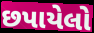
છપાયેલો